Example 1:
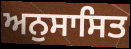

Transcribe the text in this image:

ਅਨੁਸਾਸਿਤ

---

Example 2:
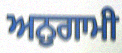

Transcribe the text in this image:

ਅਨੁਗਾਮੀ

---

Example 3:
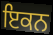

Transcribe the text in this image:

ਇਕਨ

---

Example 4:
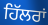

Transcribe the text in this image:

ਹਿੱਲਰਾਂ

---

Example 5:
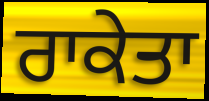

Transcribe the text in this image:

ਰਾਕੇਤਾ